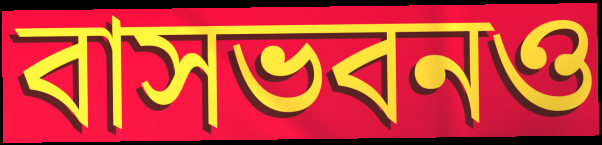
বাসভবনও